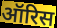
ऑरिस